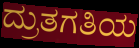
ದ್ರುತಗತಿಯ